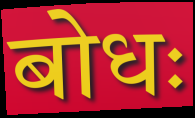
बोधः